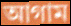
আগাম